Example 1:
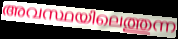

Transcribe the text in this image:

അവസ്ഥയിലെത്തുന്ന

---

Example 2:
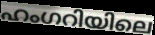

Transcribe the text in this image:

ഹംഗറിയിലെ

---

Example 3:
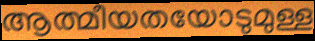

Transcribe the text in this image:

ആത്മീയതയോടുമുള്ള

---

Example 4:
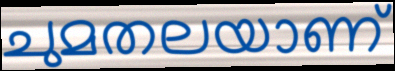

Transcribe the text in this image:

ചുമതലയാണ്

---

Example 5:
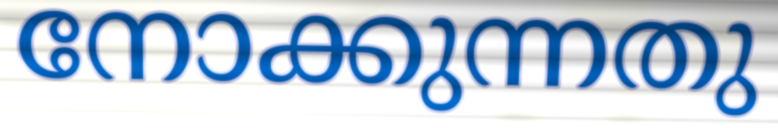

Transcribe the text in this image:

നോക്കുന്നതു